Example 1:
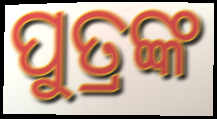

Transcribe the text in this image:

ପୁତ୍ରଙ୍କ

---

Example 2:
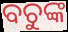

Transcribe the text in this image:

ବଚୁଙ୍କ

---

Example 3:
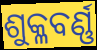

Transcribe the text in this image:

ଶୁକ୍ଳବର୍ଣ୍ଣ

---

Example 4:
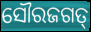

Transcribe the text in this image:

ସୌରଜଗତ୍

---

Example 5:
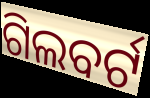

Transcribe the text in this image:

ଗିଲବର୍ଟ